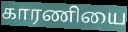
காரணியை